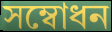
সম্বোধন